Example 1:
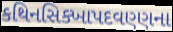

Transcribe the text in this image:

કથિનસિક્ખાપદવણ્ણના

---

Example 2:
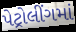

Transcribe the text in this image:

પેટ્રોલીંગમાં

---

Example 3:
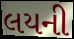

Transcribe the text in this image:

લયની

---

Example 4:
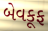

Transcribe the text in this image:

બેવકૂફ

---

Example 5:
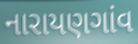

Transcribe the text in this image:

નારાયણગાંવ